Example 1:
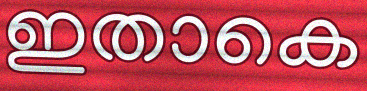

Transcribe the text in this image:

ഇതാകെ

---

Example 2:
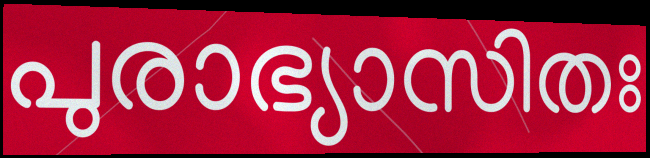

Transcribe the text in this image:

പുരാഭ്യാസിതഃ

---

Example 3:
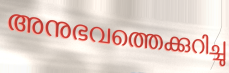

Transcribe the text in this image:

അനുഭവത്തെക്കുറിച്ചു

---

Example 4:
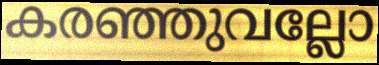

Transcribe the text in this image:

കരഞ്ഞുവല്ലോ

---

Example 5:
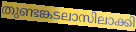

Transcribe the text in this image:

തുണ്ടങ്കടലാസിലാക്കി